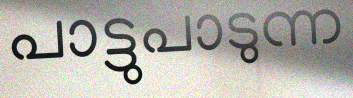
പാട്ടുപാടുന്ന